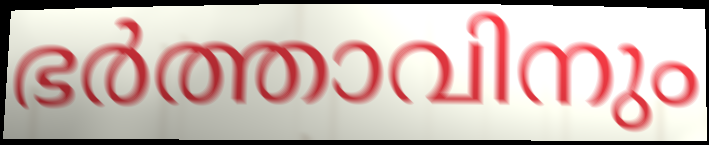
ഭർത്താവിനും